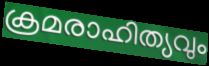
ക്രമരാഹിത്യവും